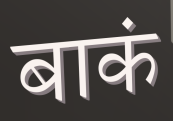
बाकं